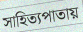
সাহিত্যপাতায়